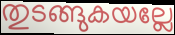
തുടങ്ങുകയല്ലേ